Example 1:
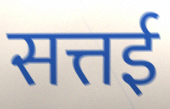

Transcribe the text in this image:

सत्तई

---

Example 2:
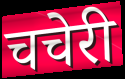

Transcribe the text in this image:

चचेरी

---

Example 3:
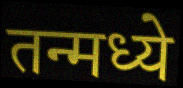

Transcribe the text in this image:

तन्मध्ये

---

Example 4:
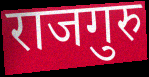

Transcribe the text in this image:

राजगुरु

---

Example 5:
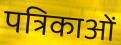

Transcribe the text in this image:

पत्रिकाओं